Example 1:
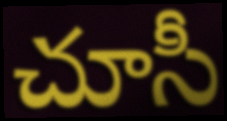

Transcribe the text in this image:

చూసీ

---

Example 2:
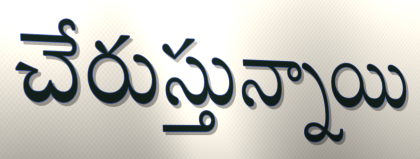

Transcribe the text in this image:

చేరుస్తున్నాయి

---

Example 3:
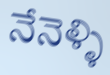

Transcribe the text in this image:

నేనెళ్ళి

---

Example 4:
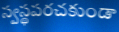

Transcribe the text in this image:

స్వస్థపరచకుండా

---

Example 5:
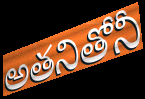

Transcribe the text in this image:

అతనితోనీ